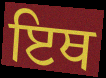
ਇਥ